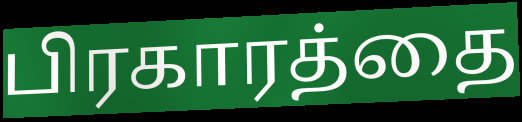
பிரகாரத்தை